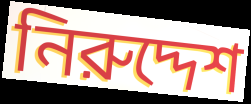
নিৰুদ্দেশ